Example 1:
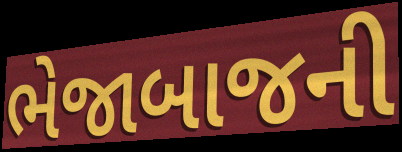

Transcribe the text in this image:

ભેજાબાજની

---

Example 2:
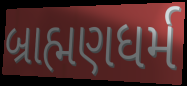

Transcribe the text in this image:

બ્રાહ્મણધર્મ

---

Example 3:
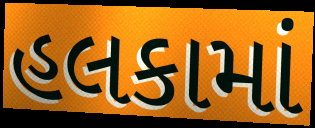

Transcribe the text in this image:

હલકામાં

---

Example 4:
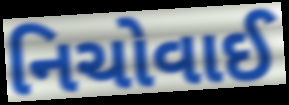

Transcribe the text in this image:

નિચોવાઈ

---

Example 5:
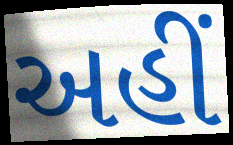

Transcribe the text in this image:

અહીં